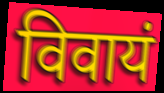
विवायं